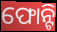
ଫୋନ୍ଟି